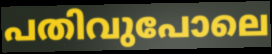
പതിവുപോലെ